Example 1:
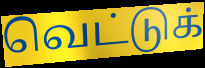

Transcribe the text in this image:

வெட்டுக்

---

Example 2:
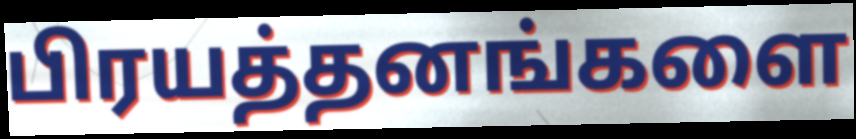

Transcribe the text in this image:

பிரயத்தனங்களை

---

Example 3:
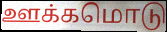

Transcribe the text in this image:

ஊக்கமொடு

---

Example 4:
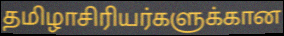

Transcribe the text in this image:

தமிழாசிரியர்களுக்கான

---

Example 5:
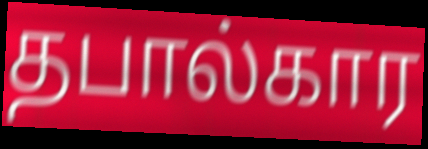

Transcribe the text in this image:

தபால்கார